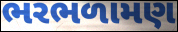
ભરભળામણ